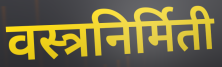
वस्त्रनिर्मिती